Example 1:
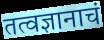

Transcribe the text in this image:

तत्वज्ञानाचं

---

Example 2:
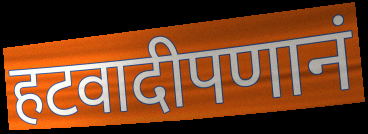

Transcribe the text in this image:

हटवादीपणानं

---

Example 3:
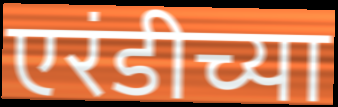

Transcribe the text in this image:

एरंडीच्या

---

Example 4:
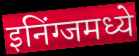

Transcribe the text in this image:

इनिंग्जमध्ये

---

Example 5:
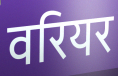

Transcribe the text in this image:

वरियर